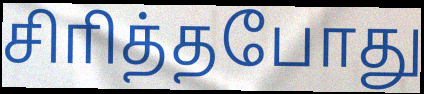
சிரித்தபோது